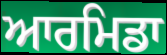
ਆਰਮਿਡਾ